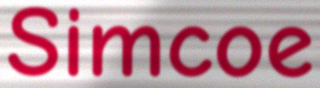
Simcoe